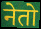
नेतो